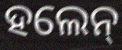
ହଲେନ୍